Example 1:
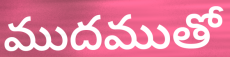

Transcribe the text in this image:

ముదముతో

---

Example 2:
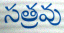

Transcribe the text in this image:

సత్రవు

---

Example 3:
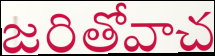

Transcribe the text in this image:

జరితోవాచ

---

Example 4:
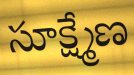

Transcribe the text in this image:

సూక్ష్మేణ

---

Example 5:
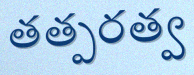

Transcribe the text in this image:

తత్పరత్వ